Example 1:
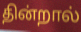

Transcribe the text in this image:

தின்றால்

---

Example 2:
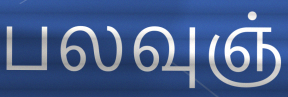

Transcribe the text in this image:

பலவுஞ்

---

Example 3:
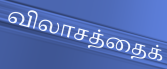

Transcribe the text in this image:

விலாசத்தைக்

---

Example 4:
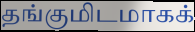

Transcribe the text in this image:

தங்குமிடமாகக்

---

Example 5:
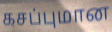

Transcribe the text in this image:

கசப்புமான